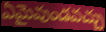
ఏమైవుండవచ్చు